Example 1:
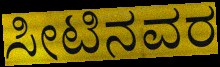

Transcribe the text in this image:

ಸೀಟಿನವರ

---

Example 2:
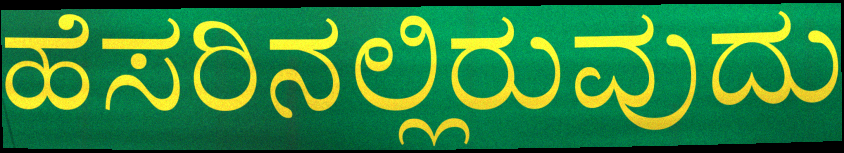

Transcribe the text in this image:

ಹೆಸರಿನಲ್ಲಿರುವುದು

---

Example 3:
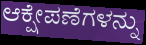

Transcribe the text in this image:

ಆಕ್ಷೇಪಣೆಗಳನ್ನು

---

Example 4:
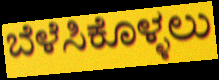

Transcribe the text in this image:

ಬೆಳೆಸಿಕೊಳ್ಳಲು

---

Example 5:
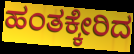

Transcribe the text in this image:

ಹಂತಕ್ಕೇರಿದ